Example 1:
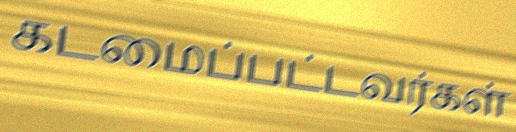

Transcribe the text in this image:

கடமைப்பட்டவர்கள்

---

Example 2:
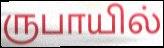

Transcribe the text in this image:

ருபாயில்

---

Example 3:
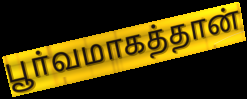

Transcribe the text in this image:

பூர்வமாகத்தான்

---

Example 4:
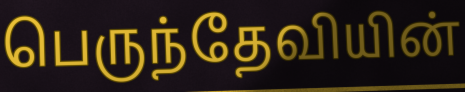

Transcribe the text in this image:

பெருந்தேவியின்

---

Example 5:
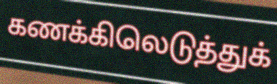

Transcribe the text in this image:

கணக்கிலெடுத்துக்